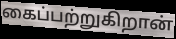
கைப்பற்றுகிறான்